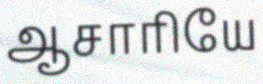
ஆசாரியே